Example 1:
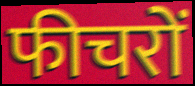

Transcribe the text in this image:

फीचरों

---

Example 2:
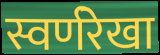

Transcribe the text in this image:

स्वर्णरेखा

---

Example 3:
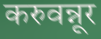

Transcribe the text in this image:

करुवन्नूर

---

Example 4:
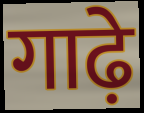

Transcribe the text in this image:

गाढ़े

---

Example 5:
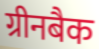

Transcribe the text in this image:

ग्रीनबैक